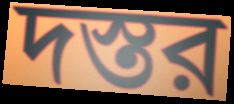
দস্তর